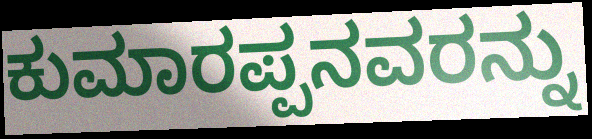
ಕುಮಾರಪ್ಪನವರನ್ನು